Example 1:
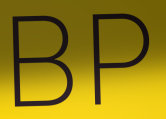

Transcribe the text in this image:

BP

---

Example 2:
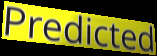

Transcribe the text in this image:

Predicted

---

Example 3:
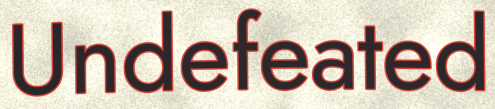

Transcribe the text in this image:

Undefeated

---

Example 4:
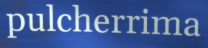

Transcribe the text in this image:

pulcherrima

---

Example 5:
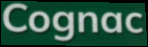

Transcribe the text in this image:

Cognac